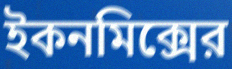
ইকনমিক্সের